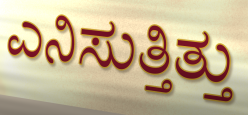
ಎನಿಸುತ್ತಿತ್ತು